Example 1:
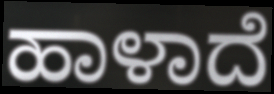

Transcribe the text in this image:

ಹಾಳಾದೆ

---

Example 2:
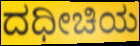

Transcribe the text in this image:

ದಧೀಚಿಯ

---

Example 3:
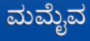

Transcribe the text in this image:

ಮಮೈವ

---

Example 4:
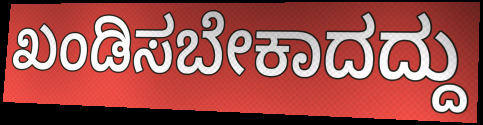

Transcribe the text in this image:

ಖಂಡಿಸಬೇಕಾದದ್ದು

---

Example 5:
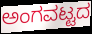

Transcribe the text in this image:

ಅಂಗವಟ್ಟದ